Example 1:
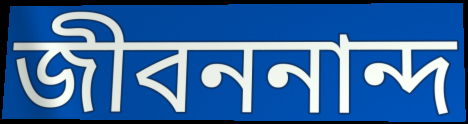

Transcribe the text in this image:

জীবননান্দ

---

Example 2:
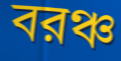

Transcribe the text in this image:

বরঞ্চ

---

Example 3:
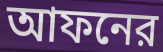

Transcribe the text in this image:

আফনের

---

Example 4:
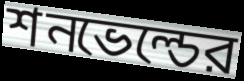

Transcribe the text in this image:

শনভেল্ডের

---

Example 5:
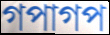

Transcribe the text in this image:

গপাগপ